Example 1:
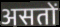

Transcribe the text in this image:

असतों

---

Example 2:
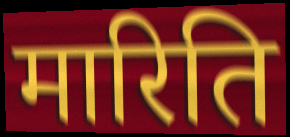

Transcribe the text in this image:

मारिति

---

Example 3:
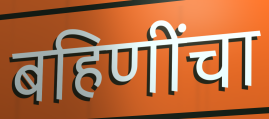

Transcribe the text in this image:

बहिणींचा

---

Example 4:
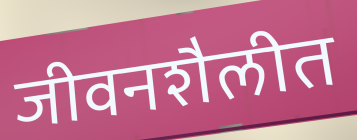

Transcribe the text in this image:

जीवनशैलीत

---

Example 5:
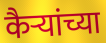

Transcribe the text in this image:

कैऱ्यांच्या